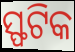
ସ୍ଫଟିକ